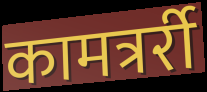
कामत्रर्री